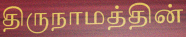
திருநாமத்தின்